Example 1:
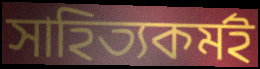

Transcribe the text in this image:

সাহিত্যকর্মই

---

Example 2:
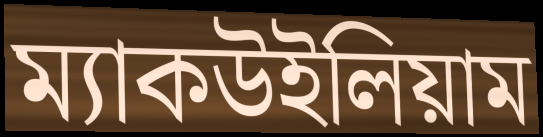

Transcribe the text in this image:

ম্যাকউইলিয়াম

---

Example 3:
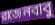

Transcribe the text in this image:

রাজেনবাবু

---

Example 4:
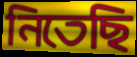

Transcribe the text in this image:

নিতেছি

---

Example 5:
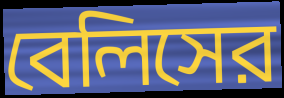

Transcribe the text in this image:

বেলিসের